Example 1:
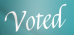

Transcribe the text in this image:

Voted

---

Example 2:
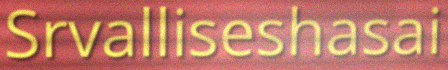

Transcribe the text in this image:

Srvalliseshasai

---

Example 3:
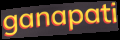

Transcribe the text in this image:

ganapati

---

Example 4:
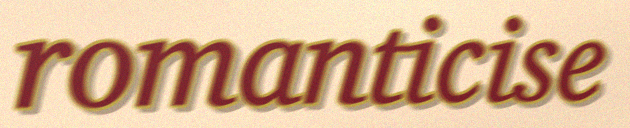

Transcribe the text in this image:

romanticise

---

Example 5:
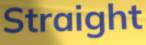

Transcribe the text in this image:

Straight